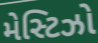
મેસ્ટિઝો